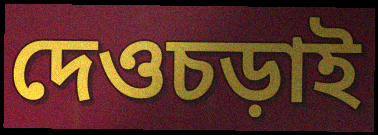
দেওচড়াই